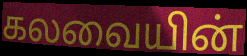
கலவையின்